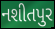
નશીતપુર